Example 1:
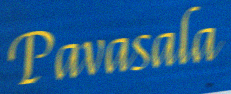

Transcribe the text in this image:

Pavasala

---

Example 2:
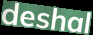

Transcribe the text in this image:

deshal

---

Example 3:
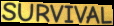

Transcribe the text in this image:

SURVIVAL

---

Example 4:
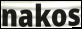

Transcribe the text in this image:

nakos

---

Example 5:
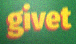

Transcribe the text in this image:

givet